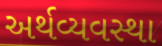
અર્થવ્યવસ્થા